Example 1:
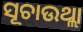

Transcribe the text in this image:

ସୂଚାଉଥ୍ଲା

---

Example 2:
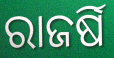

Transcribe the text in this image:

ରାଜର୍ଷି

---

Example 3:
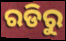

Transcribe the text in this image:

ରଡିରୁ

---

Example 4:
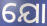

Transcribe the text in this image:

ଯୋ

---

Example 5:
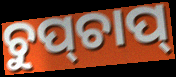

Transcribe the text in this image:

ଚୁପ୍‌ଚାପ୍